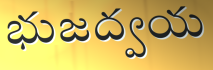
భుజద్వయ